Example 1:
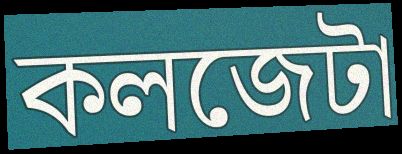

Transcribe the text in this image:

কলজেটা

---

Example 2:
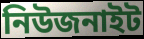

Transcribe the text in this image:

নিউজনাইট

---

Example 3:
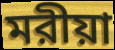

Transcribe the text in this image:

মরীয়া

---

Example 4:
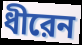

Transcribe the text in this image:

ধীরেন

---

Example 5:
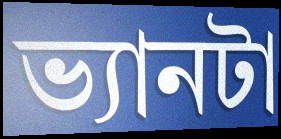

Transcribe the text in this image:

ভ্যানটা